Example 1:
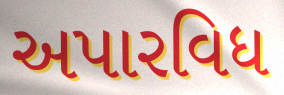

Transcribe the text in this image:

અપારવિધ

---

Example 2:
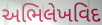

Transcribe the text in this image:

અભિલેખવિદ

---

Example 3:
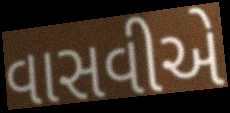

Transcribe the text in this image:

વાસવીએ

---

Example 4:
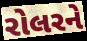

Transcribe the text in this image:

રોલરને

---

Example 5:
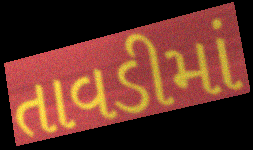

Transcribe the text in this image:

તાવડીમાં